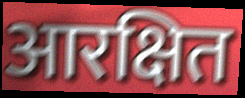
आरक्षित